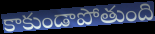
కాకుండాపోతుంది